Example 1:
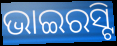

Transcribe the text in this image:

ଭାଇରସ୍ଟି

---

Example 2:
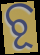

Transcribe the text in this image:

ଚୂ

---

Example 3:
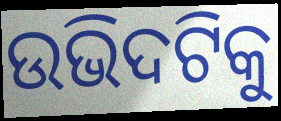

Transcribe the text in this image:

ଉଭିଦଟିକୁ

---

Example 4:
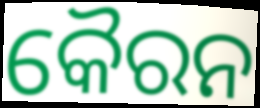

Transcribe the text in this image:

କୈରନ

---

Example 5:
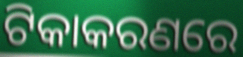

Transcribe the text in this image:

ଟିକାକରଣରେ